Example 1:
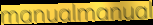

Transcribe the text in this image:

manualmanual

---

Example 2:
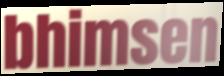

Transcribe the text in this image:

bhimsen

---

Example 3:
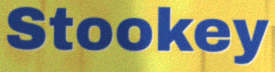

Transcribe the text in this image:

Stookey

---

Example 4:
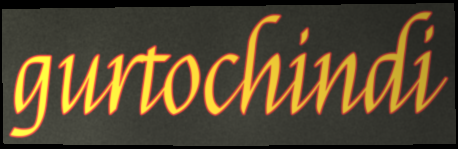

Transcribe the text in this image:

gurtochindi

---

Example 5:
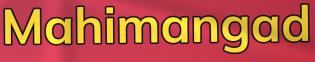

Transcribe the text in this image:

Mahimangad